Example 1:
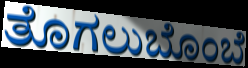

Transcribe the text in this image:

ತೊಗಲುಬೊಂಬೆ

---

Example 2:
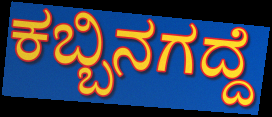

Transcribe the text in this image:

ಕಬ್ಬಿನಗದ್ದೆ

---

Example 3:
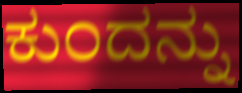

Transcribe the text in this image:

ಕುಂದನ್ನು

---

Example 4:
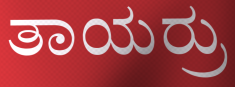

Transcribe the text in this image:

ತಾಯರ್ರು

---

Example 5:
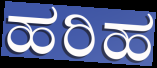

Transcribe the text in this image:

ಹರಿಹ